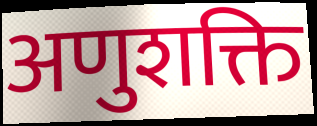
अणुशक्ति